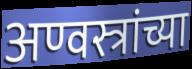
अण्वस्त्रांच्या